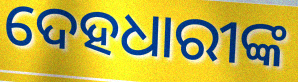
ଦେହଧାରୀଙ୍କ